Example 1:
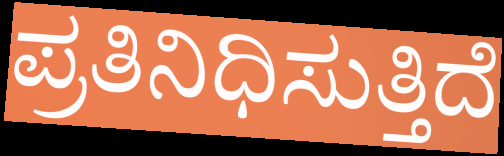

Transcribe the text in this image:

ಪ್ರತಿನಿಧಿಸುತ್ತಿದೆ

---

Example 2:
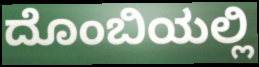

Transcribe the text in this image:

ದೊಂಬಿಯಲ್ಲಿ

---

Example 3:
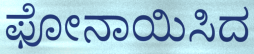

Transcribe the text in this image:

ಫೋನಾಯಿಸಿದ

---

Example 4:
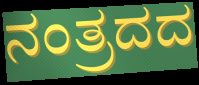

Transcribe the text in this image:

ನಂತ್ರದದ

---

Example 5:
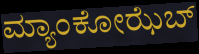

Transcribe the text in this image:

ಮ್ಯಾಂಕೋಝೆಬ್